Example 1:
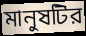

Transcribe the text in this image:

মানুষটির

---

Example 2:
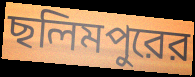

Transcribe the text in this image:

ছলিমপুরের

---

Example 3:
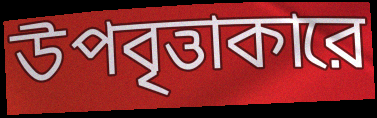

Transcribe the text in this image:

উপবৃত্তাকারে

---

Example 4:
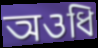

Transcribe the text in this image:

অওধি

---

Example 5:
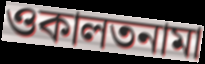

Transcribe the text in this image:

ওকালতনামা